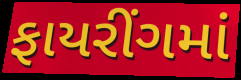
ફાયરીંગમાં